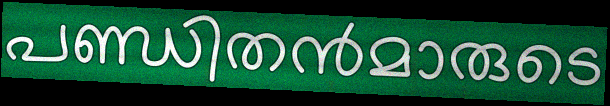
പണ്ഡിതൻമാരുടെ